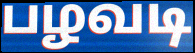
பழவடி